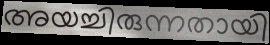
അയച്ചിരുന്നതായി